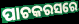
ପାଚକରସରେ